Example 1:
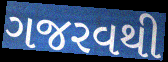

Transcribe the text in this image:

ગજરવથી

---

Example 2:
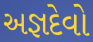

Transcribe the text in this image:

અજ્ઞદેવો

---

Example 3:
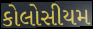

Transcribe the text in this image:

કોલોસીયમ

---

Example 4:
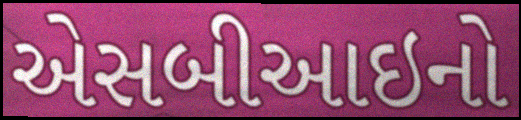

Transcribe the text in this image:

એસબીઆઇનો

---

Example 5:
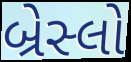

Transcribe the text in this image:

બ્રેસ્લો